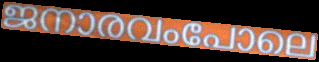
ജനാരവംപോലെ